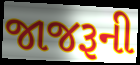
જાજરૂની